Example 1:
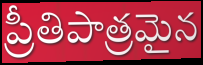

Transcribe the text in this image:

ప్రీతిపాత్రమైన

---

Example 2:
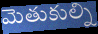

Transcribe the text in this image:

మెతుకుల్ని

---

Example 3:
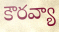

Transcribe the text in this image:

కౌరవ్యా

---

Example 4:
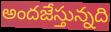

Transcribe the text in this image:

అందజేస్తున్నది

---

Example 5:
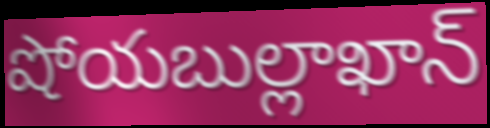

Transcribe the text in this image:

షోయబుల్లాఖాన్